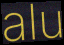
alu